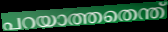
പറയാത്തതെന്ത്